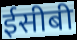
ईसीबी